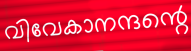
വിവേകാനന്ദന്റെ